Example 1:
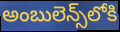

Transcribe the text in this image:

అంబులెన్స్‌లోకి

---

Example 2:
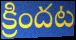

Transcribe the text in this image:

క్రిందట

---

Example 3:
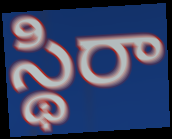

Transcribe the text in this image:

స్థిరా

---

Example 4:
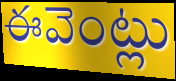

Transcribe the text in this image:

ఈవెంట్లు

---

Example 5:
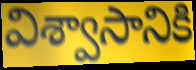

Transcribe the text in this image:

విశ్వాసానికి